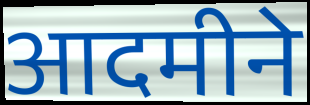
आदमीने